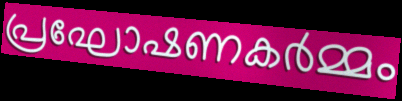
പ്രഘോഷണകർമ്മം